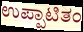
ಉಪ್ಪಾಟಿತಂ